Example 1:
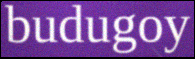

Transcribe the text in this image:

budugoy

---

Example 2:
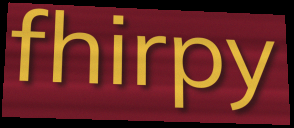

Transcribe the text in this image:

fhirpy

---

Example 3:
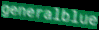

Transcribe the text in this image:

generalblue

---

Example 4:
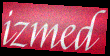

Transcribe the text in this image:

izmed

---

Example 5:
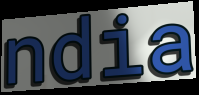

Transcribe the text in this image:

ndia